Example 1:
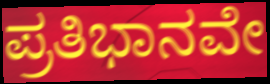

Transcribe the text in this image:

ಪ್ರತಿಭಾನವೇ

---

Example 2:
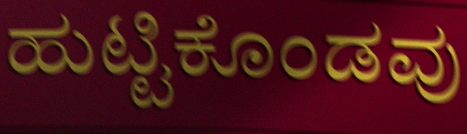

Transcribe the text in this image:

ಹುಟ್ಟಿಕೊಂಡವು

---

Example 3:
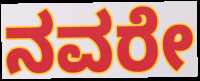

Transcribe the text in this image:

ನವರೇ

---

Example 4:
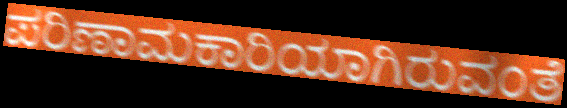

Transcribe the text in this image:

ಪರಿಣಾಮಕಾರಿಯಾಗಿರುವಂತೆ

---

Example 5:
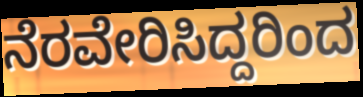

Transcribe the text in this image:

ನೆರವೇರಿಸಿದ್ದರಿಂದ